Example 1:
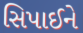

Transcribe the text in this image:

સિપાઈને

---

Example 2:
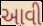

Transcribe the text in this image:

આવી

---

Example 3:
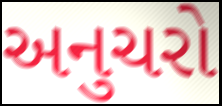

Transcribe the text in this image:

અનુચરો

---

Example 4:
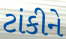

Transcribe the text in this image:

ટાંકીને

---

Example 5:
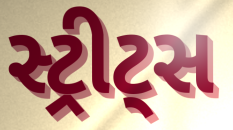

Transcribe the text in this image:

સ્ટ્રીટ્સ